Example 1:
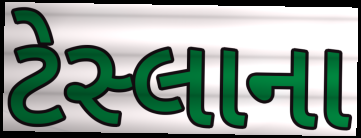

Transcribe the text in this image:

ટેસ્લાના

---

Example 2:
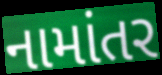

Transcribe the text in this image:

નામાંતર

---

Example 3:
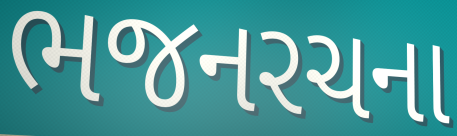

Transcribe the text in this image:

ભજનરચના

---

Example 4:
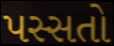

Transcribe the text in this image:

પસ્સતો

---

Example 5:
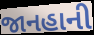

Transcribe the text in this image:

જાનહાની